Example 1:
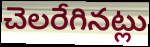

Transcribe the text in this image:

చెలరేగినట్లు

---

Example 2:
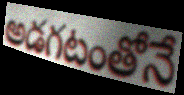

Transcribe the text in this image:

అడగటంతోనే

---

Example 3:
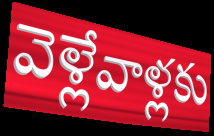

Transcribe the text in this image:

వెళ్లేవాళ్లకు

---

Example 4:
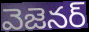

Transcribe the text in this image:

వెజెనర్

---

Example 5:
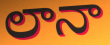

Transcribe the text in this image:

లానా